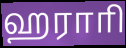
ஹராரி